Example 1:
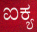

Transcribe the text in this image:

ಐಕ್ಯ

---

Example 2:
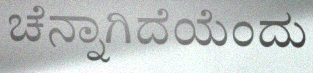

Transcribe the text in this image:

ಚೆನ್ನಾಗಿದೆಯೆಂದು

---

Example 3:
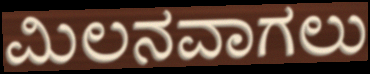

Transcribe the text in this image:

ಮಿಲನವಾಗಲು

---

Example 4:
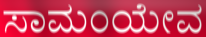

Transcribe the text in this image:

ಸಾಮಂಯೇವ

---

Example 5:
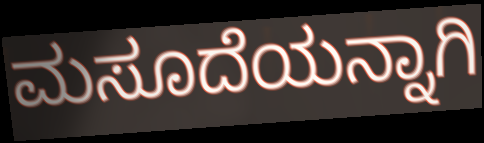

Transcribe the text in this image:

ಮಸೂದೆಯನ್ನಾಗಿ